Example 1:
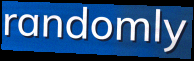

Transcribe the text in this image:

randomly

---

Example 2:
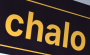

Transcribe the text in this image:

chalo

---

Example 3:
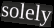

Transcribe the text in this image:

solely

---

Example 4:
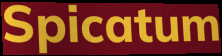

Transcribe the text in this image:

Spicatum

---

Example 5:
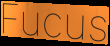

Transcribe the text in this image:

Fucus